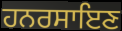
ਹਨਰਸਾਇਣ